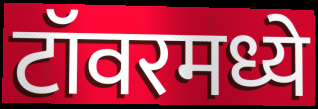
टॉवरमध्ये